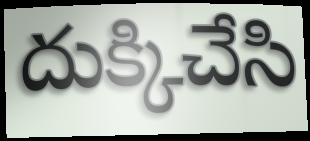
దుక్కిచేసి